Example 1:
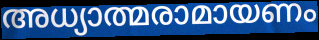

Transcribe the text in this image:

അധ്യാത്മരാമായണം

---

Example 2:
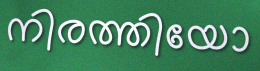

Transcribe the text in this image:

നിരത്തിയോ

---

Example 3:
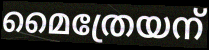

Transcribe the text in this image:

മൈത്രേയന്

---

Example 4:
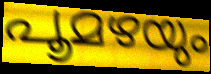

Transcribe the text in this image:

പൂമഴയും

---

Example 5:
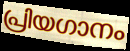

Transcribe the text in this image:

പ്രിയഗാനം